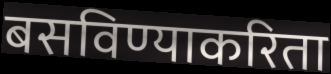
बसविण्याकरिता